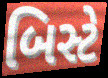
બિસ્ટે